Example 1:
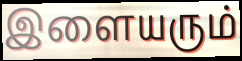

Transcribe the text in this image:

இளையரும்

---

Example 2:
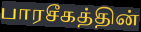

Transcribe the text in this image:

பாரசீகத்தின்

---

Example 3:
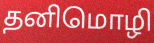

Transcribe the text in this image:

தனிமொழி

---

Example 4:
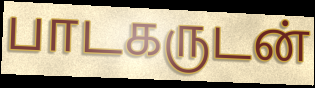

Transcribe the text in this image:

பாடகருடன்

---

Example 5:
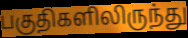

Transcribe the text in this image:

பகுதிகளிலிருந்து